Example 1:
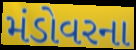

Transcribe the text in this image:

મંડોવરના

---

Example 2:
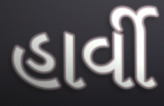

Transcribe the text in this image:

હાર્વી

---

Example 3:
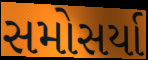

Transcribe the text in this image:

સમોસર્યા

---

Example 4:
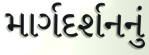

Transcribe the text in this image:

માર્ગદર્શનનું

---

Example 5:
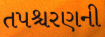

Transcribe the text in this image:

તપશ્ચરણની